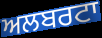
ਅਲਬਰਟਾ